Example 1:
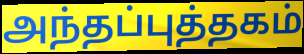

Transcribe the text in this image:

அந்தப்புத்தகம்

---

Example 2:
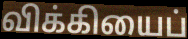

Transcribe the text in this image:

விக்கியைப்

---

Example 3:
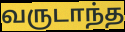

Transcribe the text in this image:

வருடாந்த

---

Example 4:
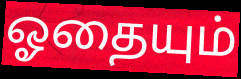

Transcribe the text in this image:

ஓதையும்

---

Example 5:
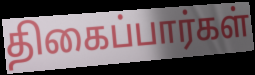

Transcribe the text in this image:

திகைப்பார்கள்